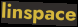
linspace